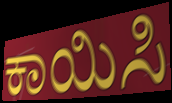
ಕಾಯಿಸಿ